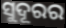
ସୁଦୂରର